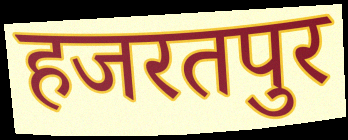
हजरतपुर